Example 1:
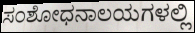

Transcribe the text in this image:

ಸಂಶೋಧನಾಲಯಗಳಲ್ಲಿ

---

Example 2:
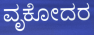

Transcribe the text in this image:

ವೃಕೋದರ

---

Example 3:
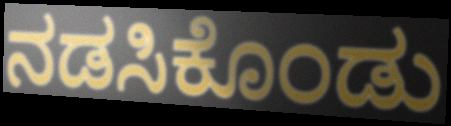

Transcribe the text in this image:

ನಡಸಿಕೊಂಡು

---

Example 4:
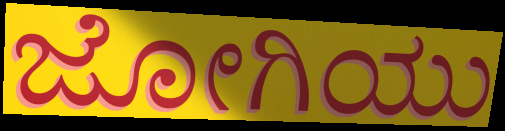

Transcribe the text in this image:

ಜೋಗಿಯು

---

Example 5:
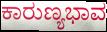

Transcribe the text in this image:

ಕಾರುಣ್ಯಭಾವ